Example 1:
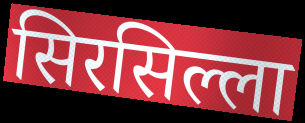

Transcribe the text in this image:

सिरसिल्ला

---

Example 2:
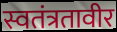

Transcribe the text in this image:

स्वतंत्रतावीर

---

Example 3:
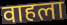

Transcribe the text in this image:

वाहला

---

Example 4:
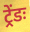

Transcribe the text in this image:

ट्रेंडः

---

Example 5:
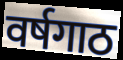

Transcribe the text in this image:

वर्षगाठ